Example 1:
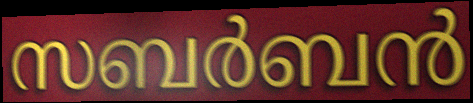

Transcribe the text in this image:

സബർബൻ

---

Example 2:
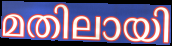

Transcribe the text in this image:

മതിലായി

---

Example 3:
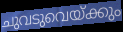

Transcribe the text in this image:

ചുവടുവെയ്ക്കും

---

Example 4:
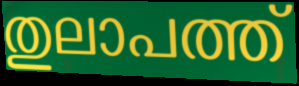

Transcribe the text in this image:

തുലാപത്ത്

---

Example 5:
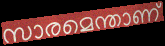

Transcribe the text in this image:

സാരമെന്താണ്